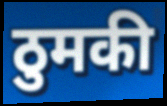
ठुमकी